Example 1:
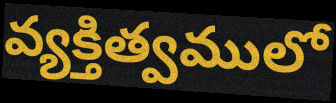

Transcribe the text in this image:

వ్యక్తిత్వములో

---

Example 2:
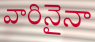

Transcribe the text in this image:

వారినైనా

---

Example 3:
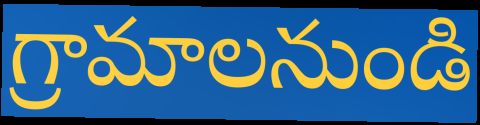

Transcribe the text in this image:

గ్రామాలనుండి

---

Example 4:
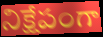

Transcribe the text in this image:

నిక్షేపంగా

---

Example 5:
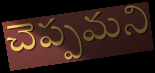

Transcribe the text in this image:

చెప్పమని